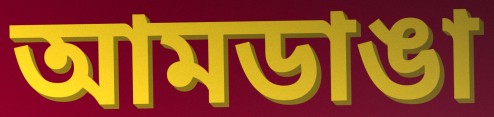
আমডাঙা